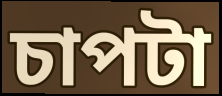
চাপটা